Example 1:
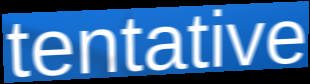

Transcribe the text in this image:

tentative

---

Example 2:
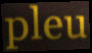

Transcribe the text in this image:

pleu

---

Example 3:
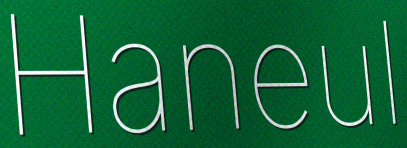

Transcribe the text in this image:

Haneul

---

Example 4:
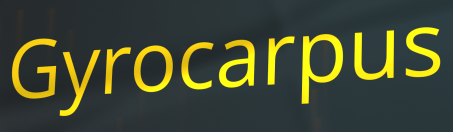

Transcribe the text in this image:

Gyrocarpus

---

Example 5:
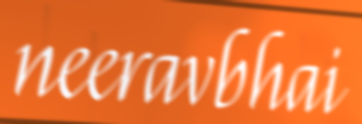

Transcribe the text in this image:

neeravbhai